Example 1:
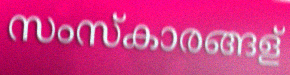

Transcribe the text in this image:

സംസ്കാരങ്ങള്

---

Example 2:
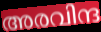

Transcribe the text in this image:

അരവിന്ദ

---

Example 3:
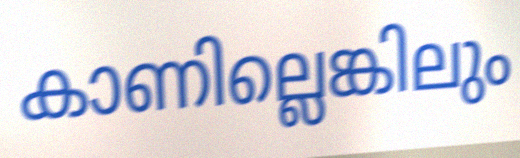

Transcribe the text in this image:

കാണില്ലെങ്കിലും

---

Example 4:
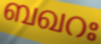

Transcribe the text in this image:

ബഖറഃ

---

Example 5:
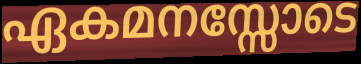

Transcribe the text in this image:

ഏകമനസ്സോടെ